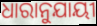
ଧାରାନୁଯାୟୀ